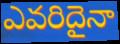
ఎవరిదైనా